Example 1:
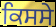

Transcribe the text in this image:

ਕਿਸਸੇ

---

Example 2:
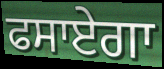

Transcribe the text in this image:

ਫਸਾਏਗਾ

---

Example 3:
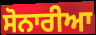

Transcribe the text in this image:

ਸੋਨਾਰੀਆ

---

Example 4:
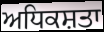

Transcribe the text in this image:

ਅਧਿਕਸ਼ਤਾ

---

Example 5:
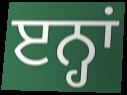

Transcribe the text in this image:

ੲਨ੍ਹਾਂ